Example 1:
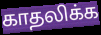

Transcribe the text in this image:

காதலிக்க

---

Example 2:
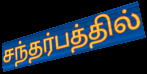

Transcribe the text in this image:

சந்தர்பத்தில்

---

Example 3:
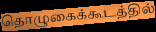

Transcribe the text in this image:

தொழுகைக்கூடத்தில்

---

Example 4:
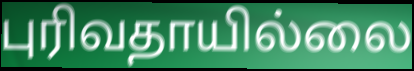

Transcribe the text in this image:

புரிவதாயில்லை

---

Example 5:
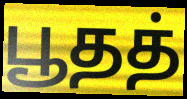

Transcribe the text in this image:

பூதத்